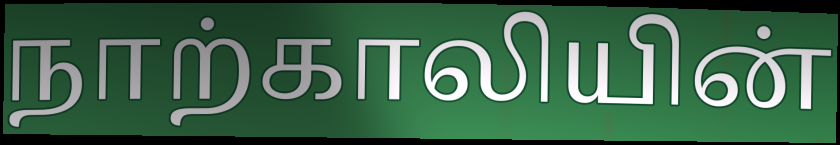
நாற்காலியின்